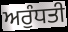
ਅਰੁੰਧਤੀ